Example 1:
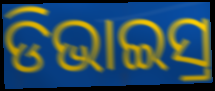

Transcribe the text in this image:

ଡିଭାଇସ୍ର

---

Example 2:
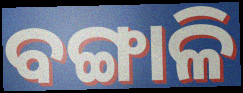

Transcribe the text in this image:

ବଙ୍ଗାଳି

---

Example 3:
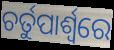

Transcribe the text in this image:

ଚର୍ତୁପାର୍ଶ୍ବରେ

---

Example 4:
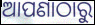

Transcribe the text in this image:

ଆପଣାଠାରୁ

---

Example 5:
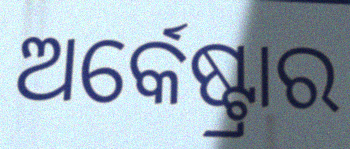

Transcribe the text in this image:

ଅର୍କେଷ୍ଟ୍ରାର